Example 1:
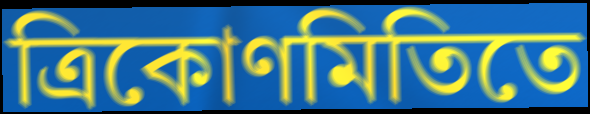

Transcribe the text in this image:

ত্রিকোণমিতিতে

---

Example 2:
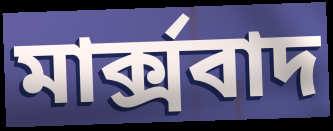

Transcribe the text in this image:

মার্ক্সবাদ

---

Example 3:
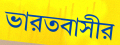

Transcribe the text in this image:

ভারতবাসীর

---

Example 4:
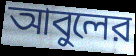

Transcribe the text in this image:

আবুলের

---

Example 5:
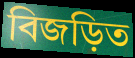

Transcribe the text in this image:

বিজড়িত